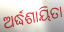
ଅର୍ଦ୍ଧଶାୟିତା